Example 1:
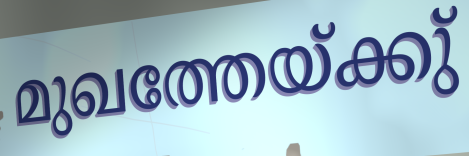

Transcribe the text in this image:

മുഖത്തേയ്ക്കു്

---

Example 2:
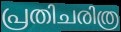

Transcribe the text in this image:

പ്രതിചരിത്ര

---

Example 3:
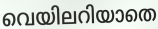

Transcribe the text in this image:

വെയിലറിയാതെ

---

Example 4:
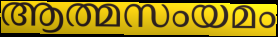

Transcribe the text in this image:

ആത്മസംയമം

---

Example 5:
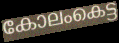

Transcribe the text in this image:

കോലംകെട്ട